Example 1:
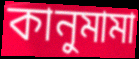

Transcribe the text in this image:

কানুমামা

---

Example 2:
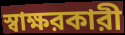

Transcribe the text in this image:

স্বাক্ষরকারী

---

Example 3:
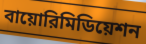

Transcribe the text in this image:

বায়োরিমিডিয়েশন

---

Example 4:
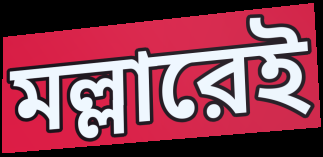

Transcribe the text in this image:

মল্লারেই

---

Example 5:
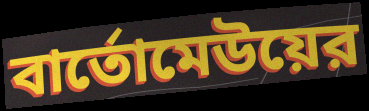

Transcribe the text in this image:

বার্তোমেউয়ের